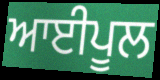
ਆਈਪੂਲ